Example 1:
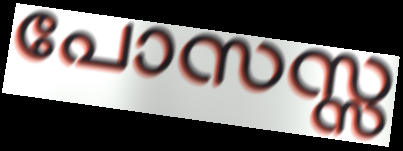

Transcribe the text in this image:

പോസസ്സ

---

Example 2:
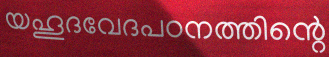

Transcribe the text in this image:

യഹൂദവേദപഠനത്തിന്റെ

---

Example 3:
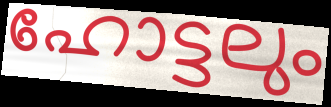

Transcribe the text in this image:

ഹോട്ടലും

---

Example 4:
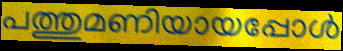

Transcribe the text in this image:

പത്തുമണിയായപ്പോൾ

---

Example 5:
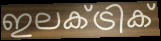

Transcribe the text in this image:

ഇലക്ട്രിക്